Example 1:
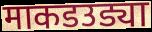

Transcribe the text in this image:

माकडउड्या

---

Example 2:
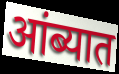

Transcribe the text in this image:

आंब्यात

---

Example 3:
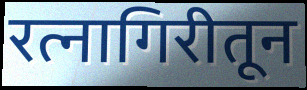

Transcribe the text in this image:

रत्नागिरीतून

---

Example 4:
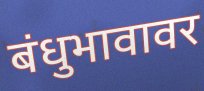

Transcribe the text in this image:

बंधुभावावर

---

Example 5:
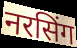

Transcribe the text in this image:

नरसिंग